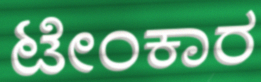
ಟೇಂಕಾರ